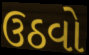
ઉઠવો